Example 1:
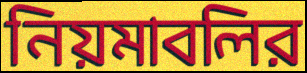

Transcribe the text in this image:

নিয়মাবলির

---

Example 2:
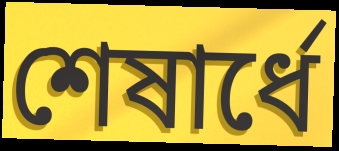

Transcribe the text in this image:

শেষার্ধে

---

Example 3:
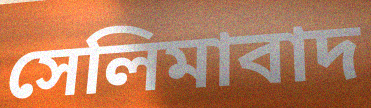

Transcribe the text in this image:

সেলিমাবাদ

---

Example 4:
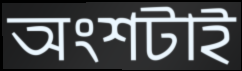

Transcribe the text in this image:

অংশটাই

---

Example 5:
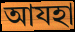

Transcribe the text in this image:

আযহা